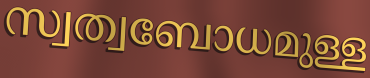
സ്വത്വബോധമുള്ള